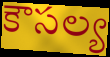
కౌసల్య